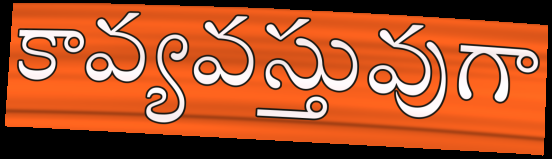
కావ్యవస్తువుగా